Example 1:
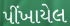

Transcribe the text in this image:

પીંખાયેલ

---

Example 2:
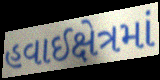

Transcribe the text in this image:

હવાઈક્ષેત્રમાં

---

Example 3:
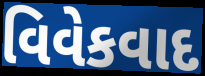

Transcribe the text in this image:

વિવેકવાદ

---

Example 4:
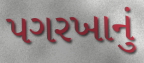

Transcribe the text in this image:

પગરખાનું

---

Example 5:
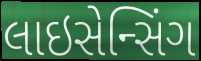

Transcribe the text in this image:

લાઇસેન્સિંગ